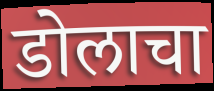
डोलाचा